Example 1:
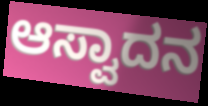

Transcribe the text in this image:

ಆಸ್ವಾದನ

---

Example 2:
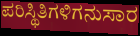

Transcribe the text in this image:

ಪರಿಸ್ಥಿತಿಗಳಿಗನುಸಾರ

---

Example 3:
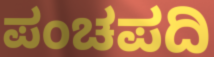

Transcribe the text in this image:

ಪಂಚಪದಿ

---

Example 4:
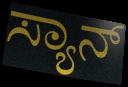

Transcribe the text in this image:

ಸ್ಯಾನ್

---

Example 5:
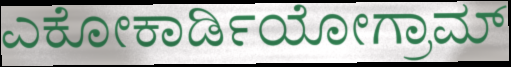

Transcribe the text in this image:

ಎಕೋಕಾರ್ಡಿಯೋಗ್ರಾಮ್